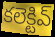
కలెక్టివ్